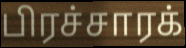
பிரச்சாரக்